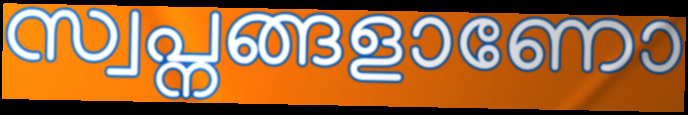
സ്വപ്നങ്ങളാണോ